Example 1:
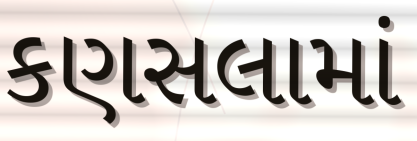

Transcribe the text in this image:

કણસલામાં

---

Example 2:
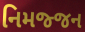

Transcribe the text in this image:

નિમજ્જન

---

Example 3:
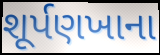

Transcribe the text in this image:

શૂર્પણખાના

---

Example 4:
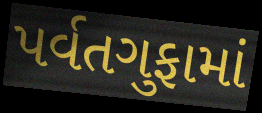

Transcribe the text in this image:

પર્વતગુફામાં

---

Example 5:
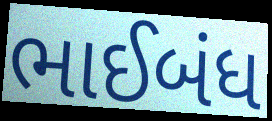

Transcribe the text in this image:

ભાઈબંધ